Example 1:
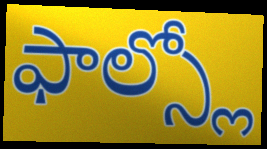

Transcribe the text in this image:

ఫాల్స్లో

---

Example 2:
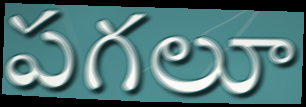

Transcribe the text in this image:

పగలూ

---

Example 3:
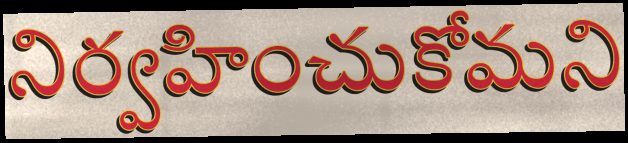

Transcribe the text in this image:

నిర్వహించుకోమని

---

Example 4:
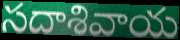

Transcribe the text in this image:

సదాశివాయ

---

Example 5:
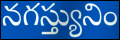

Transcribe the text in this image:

నగస్త్యునిం